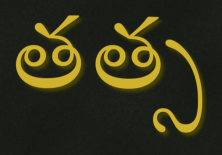
తత్స